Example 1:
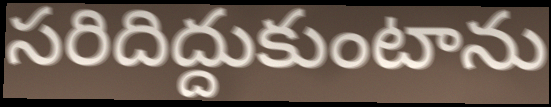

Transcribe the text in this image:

సరిదిద్దుకుంటాను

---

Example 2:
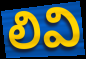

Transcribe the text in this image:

లివి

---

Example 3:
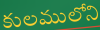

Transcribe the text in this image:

కులములోని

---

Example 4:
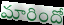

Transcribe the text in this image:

మారిందో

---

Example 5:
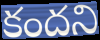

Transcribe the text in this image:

కందని